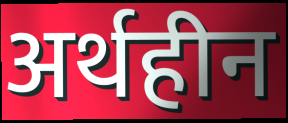
अर्थहीन